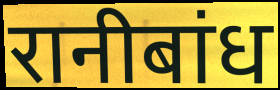
रानीबांध